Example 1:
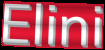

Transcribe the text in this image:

Elini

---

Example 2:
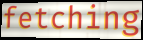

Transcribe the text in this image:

fetching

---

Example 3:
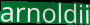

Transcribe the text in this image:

arnoldii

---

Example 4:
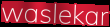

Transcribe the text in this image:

waslekar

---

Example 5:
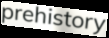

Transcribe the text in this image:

prehistory